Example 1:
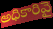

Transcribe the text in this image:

అధికారివై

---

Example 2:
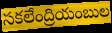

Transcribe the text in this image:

సకలేంద్రియంబుల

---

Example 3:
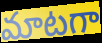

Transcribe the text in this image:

మాటగా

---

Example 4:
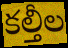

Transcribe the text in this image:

కల్తీల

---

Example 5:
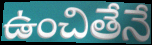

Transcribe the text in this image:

ఉంచితేనే